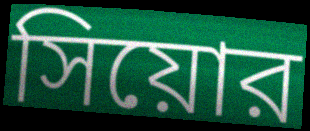
সিয়োর